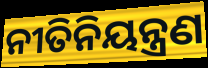
ନୀତିନିୟନ୍ତ୍ରଣ